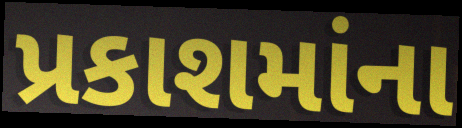
પ્રકાશમાંના